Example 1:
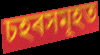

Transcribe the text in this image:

চহৰসমূহত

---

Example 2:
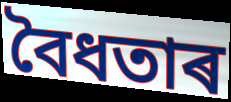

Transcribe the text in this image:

বৈধতাৰ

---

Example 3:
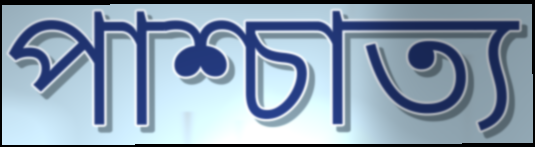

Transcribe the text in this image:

পাশ্চাত্য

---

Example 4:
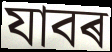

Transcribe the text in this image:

যাবৰ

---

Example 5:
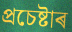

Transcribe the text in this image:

প্ৰচেষ্টাৰ